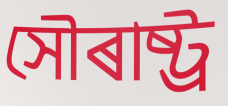
সৌৰাষ্ট্ৰ